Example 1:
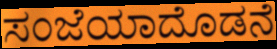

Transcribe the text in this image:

ಸಂಜೆಯಾದೊಡನೆ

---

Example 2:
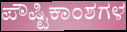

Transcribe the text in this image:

ಪೌಷ್ಟಿಕಾಂಶಗಳ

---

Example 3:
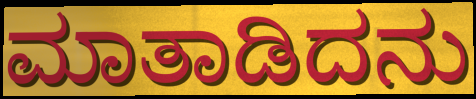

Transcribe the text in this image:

ಮಾತಾಡಿದನು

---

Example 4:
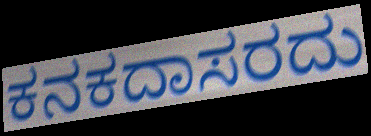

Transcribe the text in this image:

ಕನಕದಾಸರದು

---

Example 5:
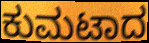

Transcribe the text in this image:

ಕುಮಟಾದ